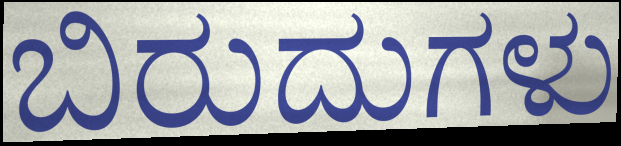
ಬಿರುದುಗಳು